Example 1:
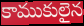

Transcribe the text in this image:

కాముకులైన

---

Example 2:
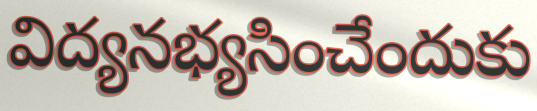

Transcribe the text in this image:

విద్యనభ్యసించేందుకు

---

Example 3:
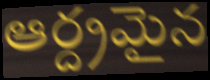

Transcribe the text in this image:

ఆర్ద్రమైన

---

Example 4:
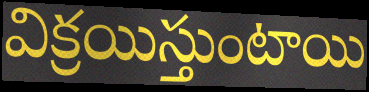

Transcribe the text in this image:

విక్రయిస్తుంటాయి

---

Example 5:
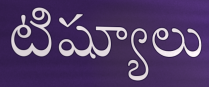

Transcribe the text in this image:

టిష్యూలు